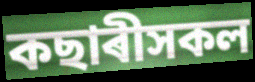
কছাৰীসকল